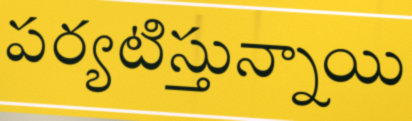
పర్యటిస్తున్నాయి